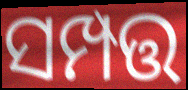
ସମ୍ପତ୍ତ